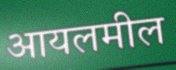
आयलमील